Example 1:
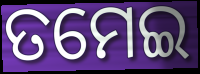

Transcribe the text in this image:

ତମେଇ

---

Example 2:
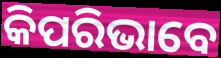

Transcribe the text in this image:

କିପରିଭାବେ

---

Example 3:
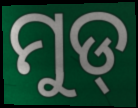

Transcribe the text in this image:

ମୁଡ୍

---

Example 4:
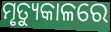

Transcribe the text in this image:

ମୃତ୍ୟୁକାଳରେ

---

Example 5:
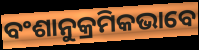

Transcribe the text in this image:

ବଂଶାନୁକ୍ରମିକଭାବେ